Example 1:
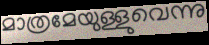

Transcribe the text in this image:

മാത്രമേയുള്ളുവെന്നു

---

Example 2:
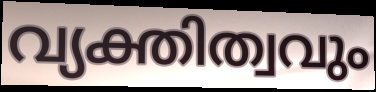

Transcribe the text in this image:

വ്യക്തിത്വവും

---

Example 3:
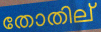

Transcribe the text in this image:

തോതില്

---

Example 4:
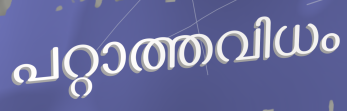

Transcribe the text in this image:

പറ്റാത്തവിധം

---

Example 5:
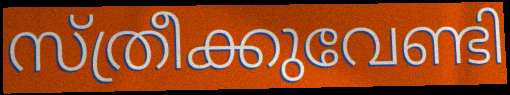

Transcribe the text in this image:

സ്ത്രീക്കുവേണ്ടി